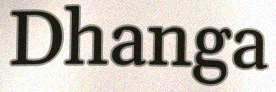
Dhanga